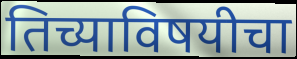
तिच्याविषयीचा